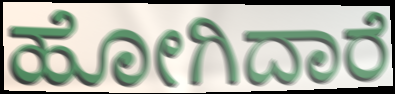
ಹೋಗಿದಾರೆ